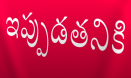
ఇప్పుడతనికి